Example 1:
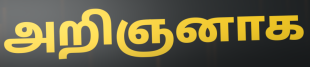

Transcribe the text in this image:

அறிஞனாக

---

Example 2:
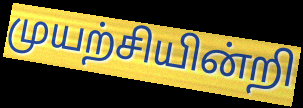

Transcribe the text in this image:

முயற்சியின்றி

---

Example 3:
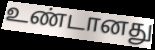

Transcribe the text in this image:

உண்டானது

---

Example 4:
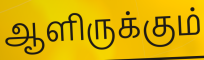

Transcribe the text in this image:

ஆளிருக்கும்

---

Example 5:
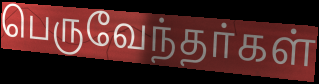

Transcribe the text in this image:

பெருவேந்தர்கள்